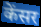
केंसर